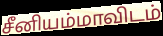
சீனியம்மாவிடம்